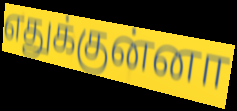
எதுக்குன்னா